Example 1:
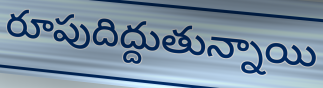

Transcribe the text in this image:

రూపుదిద్దుతున్నాయి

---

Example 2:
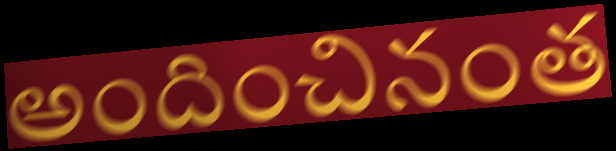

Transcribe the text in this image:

అందించినంత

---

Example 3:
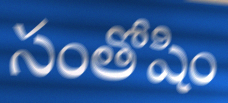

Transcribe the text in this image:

సంతోషిం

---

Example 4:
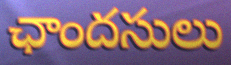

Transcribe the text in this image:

ఛాందసులు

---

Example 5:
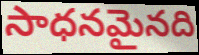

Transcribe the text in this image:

సాధనమైనది